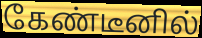
கேண்டீனில்